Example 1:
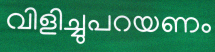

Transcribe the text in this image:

വിളിച്ചുപറയണം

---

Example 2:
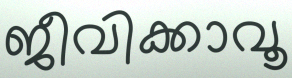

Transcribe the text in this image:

ജീവിക്കാവൂ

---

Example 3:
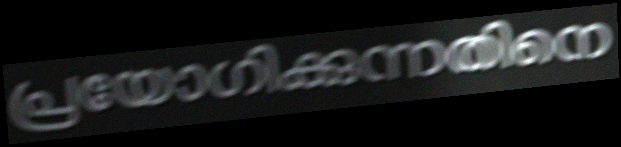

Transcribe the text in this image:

പ്രയോഗിക്കുന്നതിനെ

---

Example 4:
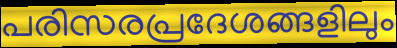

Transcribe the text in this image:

പരിസരപ്രദേശങ്ങളിലും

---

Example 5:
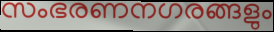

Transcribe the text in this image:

സംഭരണനഗരങ്ങളും